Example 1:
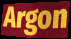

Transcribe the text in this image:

Argon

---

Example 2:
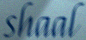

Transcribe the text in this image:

shaal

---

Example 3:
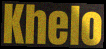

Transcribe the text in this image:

Khelo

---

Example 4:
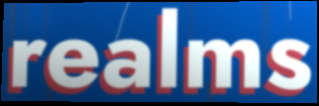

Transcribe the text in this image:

realms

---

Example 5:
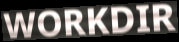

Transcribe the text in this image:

WORKDIR